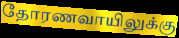
தோரணவாயிலுக்கு